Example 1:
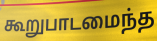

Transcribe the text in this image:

கூறுபாடமைந்த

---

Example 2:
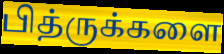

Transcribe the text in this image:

பித்ருக்களை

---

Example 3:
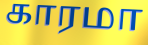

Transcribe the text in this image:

காரமா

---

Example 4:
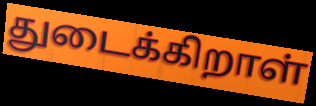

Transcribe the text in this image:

துடைக்கிறாள்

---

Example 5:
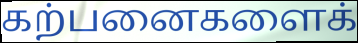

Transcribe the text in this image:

கற்பனைகளைக்